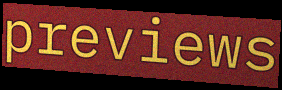
previews